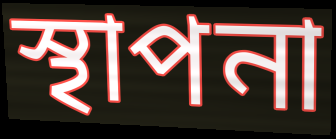
স্থাপনা